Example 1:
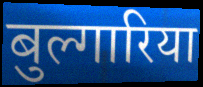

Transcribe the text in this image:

बुल्गारिया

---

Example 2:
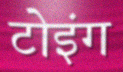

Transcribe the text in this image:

टोइंग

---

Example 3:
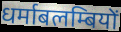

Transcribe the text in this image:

धर्माबलम्बियों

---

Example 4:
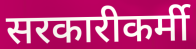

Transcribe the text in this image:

सरकारीकर्मी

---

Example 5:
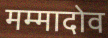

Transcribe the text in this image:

मम्मादोव